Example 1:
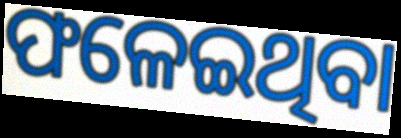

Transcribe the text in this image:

ଫଳେଇଥିବା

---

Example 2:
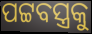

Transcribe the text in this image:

ପଟ୍ଟବସ୍ତ୍ରକୁ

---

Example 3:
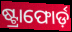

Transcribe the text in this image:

ଷ୍ଟ୍ରାଫୋର୍ଡ଼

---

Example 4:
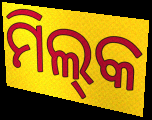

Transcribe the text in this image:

ମିଲ୍‌କ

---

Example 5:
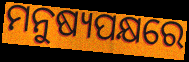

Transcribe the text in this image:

ମନୁଷ୍ୟପକ୍ଷରେ